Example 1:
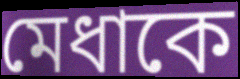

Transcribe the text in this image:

মেধাকে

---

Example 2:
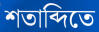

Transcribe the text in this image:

শতাব্দিতে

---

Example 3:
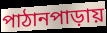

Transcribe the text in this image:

পাঠানপাড়ায়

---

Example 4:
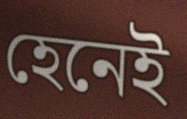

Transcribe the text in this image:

হেনেই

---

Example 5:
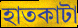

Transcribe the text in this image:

হাতকাটা